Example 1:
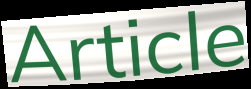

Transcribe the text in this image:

Article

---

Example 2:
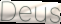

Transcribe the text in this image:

Deus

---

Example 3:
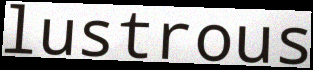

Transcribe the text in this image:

lustrous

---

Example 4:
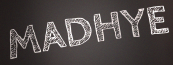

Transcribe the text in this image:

MADHYE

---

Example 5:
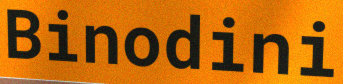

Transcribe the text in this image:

Binodini